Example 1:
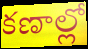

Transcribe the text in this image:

కణాల్లో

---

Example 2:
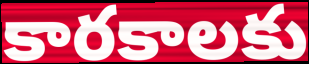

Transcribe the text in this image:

కారకాలకు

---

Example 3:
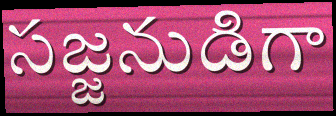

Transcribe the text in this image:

సజ్జనుడిగా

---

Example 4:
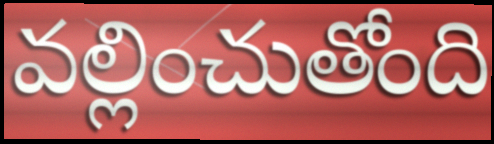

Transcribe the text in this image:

వల్లించుతోంది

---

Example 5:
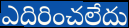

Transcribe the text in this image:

ఎదిరించలేదు